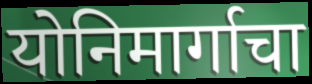
योनिमार्गाचा